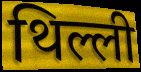
थिल्ली